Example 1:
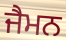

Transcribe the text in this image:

ਜੈਮਨ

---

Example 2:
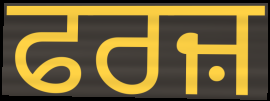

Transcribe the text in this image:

ਫਰਜ਼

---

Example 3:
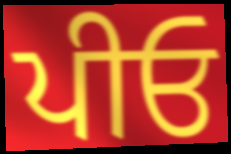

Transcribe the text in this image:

ਪੀਓ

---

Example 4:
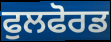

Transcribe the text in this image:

ਫੁਲਫੋਰਡ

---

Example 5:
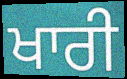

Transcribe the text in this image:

ਖਾਰੀ